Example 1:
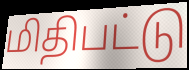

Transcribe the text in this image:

மிதிபட்டு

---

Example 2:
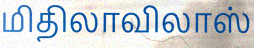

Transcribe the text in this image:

மிதிலாவிலாஸ்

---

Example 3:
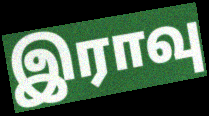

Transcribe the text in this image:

இராவு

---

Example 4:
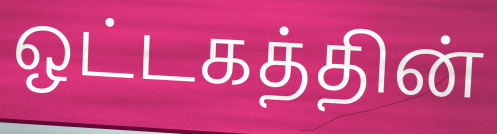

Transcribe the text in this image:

ஒட்டகத்தின்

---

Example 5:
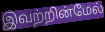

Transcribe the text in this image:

இவற்றின்மேல்